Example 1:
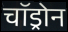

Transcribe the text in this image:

चॉड्रोन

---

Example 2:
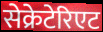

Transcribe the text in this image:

सेक्रेटेरिएट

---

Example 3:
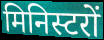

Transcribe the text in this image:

मिनिस्टरों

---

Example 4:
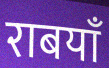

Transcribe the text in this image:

राबयाँ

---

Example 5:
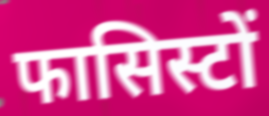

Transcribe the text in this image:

फासिस्टों